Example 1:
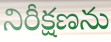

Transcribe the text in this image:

నిరీక్షణను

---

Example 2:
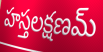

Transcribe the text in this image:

హస్తలక్షణమ్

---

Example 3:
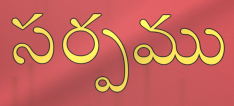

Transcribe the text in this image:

సర్పము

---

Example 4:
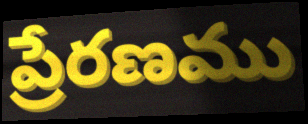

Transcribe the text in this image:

ప్రేరణము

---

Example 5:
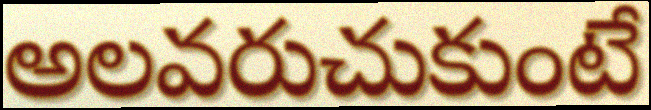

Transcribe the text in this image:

అలవరుచుకుంటే